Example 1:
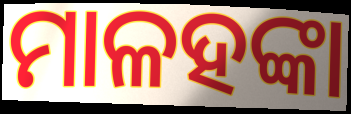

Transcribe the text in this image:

ମାଳହଙ୍କା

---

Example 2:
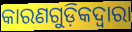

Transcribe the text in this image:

କାରଣଗୁଡ଼ିକଦ୍ବାରା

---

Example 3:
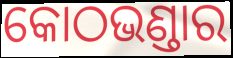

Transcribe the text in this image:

କୋଠଭଣ୍ଡାର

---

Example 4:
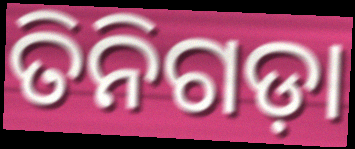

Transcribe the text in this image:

ତିନିଗଡ଼ା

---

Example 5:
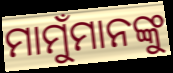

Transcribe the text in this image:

ମାମୁଁମାନଙ୍କୁ